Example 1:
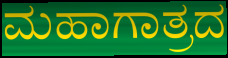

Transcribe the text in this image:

ಮಹಾಗಾತ್ರದ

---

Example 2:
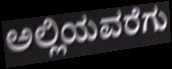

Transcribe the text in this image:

ಅಲ್ಲಿಯವರೆಗು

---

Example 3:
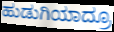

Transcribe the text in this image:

ಹುಡುಗಿಯಾದ್ರೂ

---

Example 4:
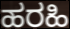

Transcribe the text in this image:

ಹರಹಿ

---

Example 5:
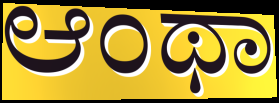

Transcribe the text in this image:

ಆಂಥಾ